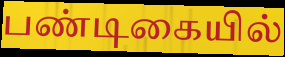
பண்டிகையில்